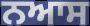
ਨਆਸ